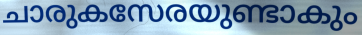
ചാരുകസേരയുണ്ടാകും